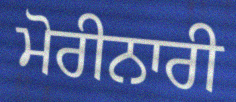
ਮੋਰੀਨਾਰੀ